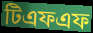
টিএফএফ